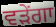
ਵੜੇਂਗਾ